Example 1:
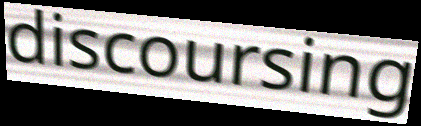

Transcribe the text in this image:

discoursing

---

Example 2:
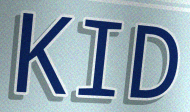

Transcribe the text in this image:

KID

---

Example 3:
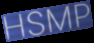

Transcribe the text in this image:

HSMP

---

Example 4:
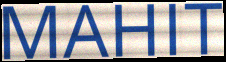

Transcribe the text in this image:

MAHIT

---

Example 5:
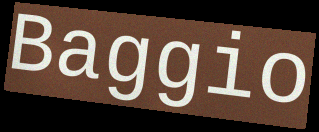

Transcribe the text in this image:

Baggio